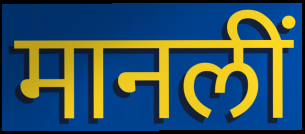
मानलीं